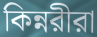
কিন্নরীরা